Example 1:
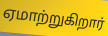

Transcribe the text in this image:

ஏமாற்றுகிறார்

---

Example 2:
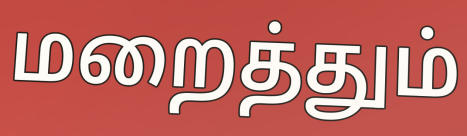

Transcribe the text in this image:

மறைத்தும்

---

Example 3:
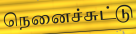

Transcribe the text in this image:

நெனைச்சுட்டு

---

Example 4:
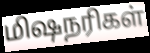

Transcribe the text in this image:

மிஷநரிகள்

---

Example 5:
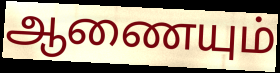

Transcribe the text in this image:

ஆணையும்